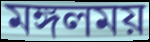
মঙ্গলময়